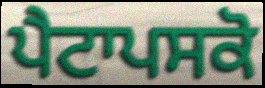
ਪੈਟਾਪਸਕੋ